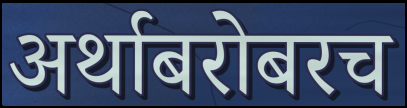
अर्थाबरोबरच